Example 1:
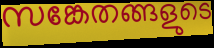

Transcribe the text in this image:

സങ്കേതങ്ങളുടെ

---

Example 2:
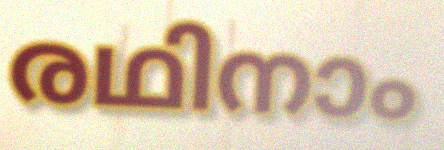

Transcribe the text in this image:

രഥിനാം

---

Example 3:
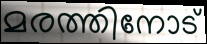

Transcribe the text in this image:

മരത്തിനോട്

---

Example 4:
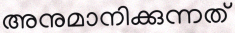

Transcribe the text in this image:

അനുമാനിക്കുന്നത്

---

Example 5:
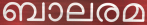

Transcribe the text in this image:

ബാലരമ